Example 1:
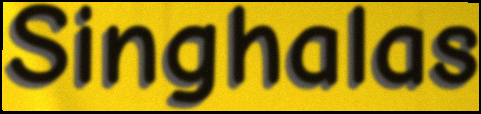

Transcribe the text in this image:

Singhalas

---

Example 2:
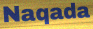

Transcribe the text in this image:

Naqada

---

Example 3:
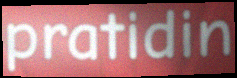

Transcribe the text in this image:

pratidin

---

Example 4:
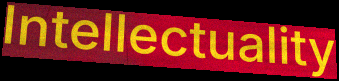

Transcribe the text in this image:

Intellectuality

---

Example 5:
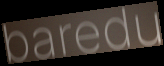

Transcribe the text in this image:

baredu